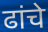
ढांचे